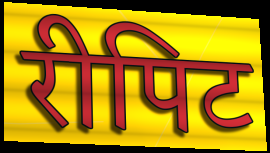
रीपिट